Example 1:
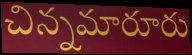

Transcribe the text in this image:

చిన్నమారూరు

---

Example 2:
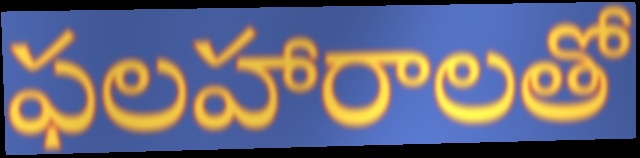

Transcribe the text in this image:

ఫలహారాలతో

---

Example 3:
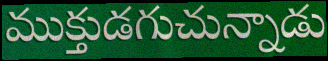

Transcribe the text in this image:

ముక్తుడగుచున్నాడు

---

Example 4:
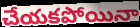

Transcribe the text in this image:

చేయకపోయినా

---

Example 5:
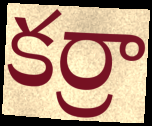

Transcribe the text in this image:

కర్రా